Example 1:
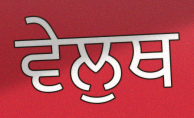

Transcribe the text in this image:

ਵੇਲੁਥ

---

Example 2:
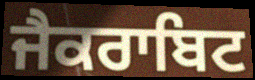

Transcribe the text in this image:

ਜੈਕਰਾਬਿਟ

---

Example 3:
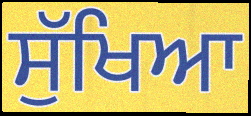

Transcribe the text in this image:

ਸੁੱਖਿਆ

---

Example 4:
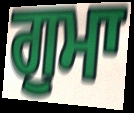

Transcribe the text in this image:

ਗੁਮਾ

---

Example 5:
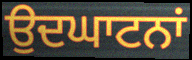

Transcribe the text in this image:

ਉਦਘਾਟਨਾਂ